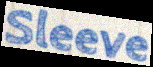
Sleeve